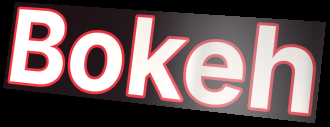
Bokeh